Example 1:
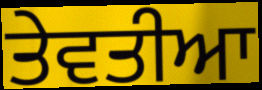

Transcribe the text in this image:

ਤੇਵਤੀਆ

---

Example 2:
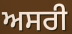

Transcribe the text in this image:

ਅਸਰੀ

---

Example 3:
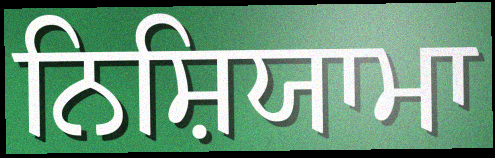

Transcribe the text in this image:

ਨਿਸ਼ਿਯਾਮਾ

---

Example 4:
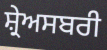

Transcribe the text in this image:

ਸ਼੍ਰੇਅਸਬਰੀ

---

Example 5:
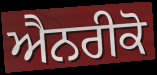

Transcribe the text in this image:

ਐਨਰੀਕੋ